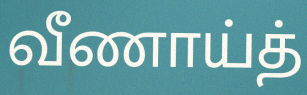
வீணாய்த்